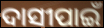
ଦାସୀପାଇଁ